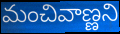
మంచివాణ్ణని